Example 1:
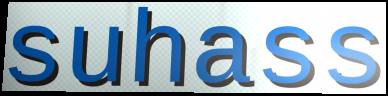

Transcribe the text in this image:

suhass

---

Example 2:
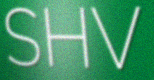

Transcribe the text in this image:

SHV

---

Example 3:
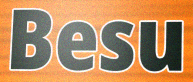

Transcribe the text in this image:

Besu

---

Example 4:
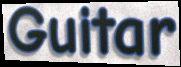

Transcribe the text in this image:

Guitar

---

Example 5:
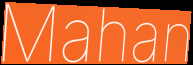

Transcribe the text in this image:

Mahan